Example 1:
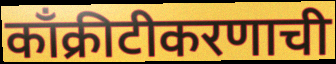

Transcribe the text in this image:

काँक्रीटीकरणाची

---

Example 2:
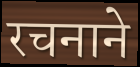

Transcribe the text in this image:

रचनाने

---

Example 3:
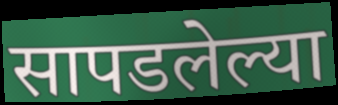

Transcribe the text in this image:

सापडलेल्‍या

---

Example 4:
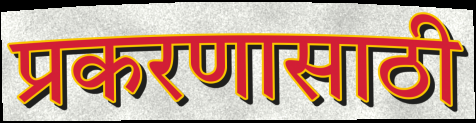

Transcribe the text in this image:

प्रकरणासाठी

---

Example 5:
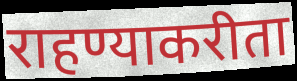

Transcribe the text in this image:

राहण्याकरीता